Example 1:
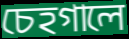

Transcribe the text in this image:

চেহগালে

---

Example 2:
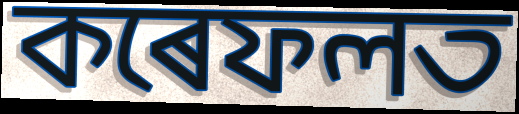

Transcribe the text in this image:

কৰেফলত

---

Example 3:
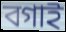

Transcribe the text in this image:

বগাই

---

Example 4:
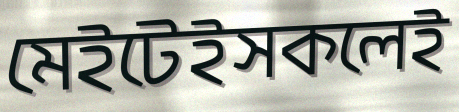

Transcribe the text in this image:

মেইটেইসকলেই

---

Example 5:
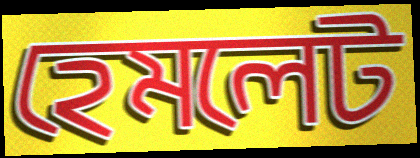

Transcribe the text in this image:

হেমলেট